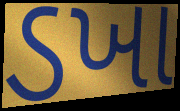
ડખા